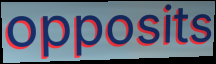
opposits